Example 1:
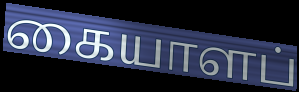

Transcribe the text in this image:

கையாளப்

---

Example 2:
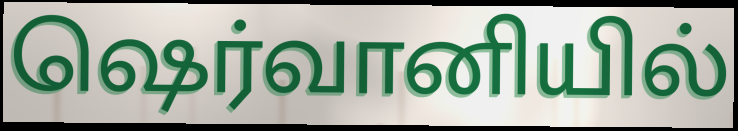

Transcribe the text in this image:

ஷெர்வானியில்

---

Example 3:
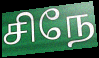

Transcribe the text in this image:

சிநே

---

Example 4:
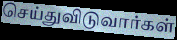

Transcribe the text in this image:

செய்துவிடுவார்கள்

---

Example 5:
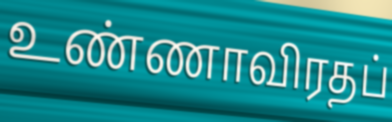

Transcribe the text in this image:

உண்ணாவிரதப்